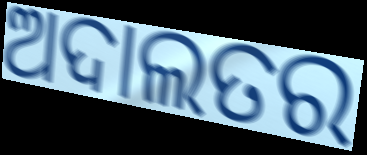
ଅଦାଲତର